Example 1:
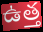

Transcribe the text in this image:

ఉత్త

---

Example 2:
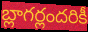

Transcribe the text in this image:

బ్లాగర్లందరికీ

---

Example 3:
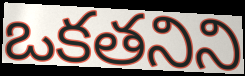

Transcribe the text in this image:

ఒకతనిని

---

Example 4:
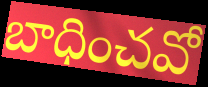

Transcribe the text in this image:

బాధించవో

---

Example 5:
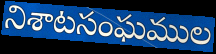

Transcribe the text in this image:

నిశాటసంఘముల